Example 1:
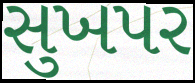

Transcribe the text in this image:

સુખપર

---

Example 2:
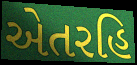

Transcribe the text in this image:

એતરહિ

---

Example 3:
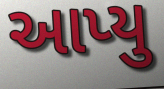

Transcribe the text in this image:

આપ્યુ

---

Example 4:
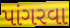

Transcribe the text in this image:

પાંગરવા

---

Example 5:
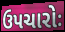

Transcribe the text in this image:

ઉપચારોઃ